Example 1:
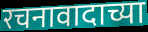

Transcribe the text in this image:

रचनावादाच्या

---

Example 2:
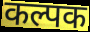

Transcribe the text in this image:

कल्पक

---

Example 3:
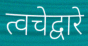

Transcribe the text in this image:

त्वचेद्वारे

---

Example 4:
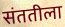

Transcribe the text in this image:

संततीला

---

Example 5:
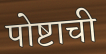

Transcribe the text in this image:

पोष्टाची